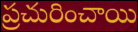
ప్రచురించాయి